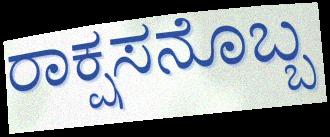
ರಾಕ್ಷಸನೊಬ್ಬ